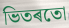
ভিতৰতো